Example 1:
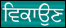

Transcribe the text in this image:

ਵਿਕਾਉਣ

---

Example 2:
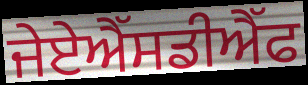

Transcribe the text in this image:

ਜੇਏਐੱਸਡੀਐੱਫ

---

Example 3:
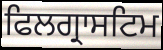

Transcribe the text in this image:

ਫਿਲਗ੍ਰਾਸਟਿਮ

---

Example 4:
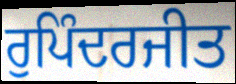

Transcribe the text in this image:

ਰੁਪਿੰਦਰਜੀਤ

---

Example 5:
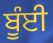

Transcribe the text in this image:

ਬੂੰਈ